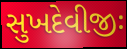
સુખદેવીજીઃ